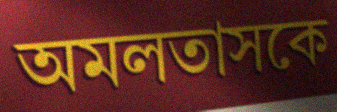
অমলতাসকে